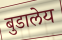
बुडालेय